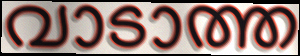
വാടാത്ത